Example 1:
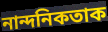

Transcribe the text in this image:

নান্দনিকতাক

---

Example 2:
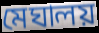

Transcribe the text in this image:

মেঘালয়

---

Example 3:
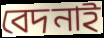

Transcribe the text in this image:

বেদনাই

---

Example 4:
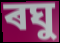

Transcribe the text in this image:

ৰঘু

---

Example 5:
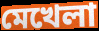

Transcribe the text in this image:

মেখেলা